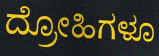
ದ್ರೋಹಿಗಳೂ